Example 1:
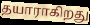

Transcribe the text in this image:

தயாராகிறது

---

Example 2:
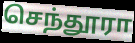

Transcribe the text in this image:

செந்தூரா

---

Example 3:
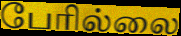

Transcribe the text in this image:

பேரில்லை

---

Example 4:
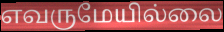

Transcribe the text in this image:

எவருமேயில்லை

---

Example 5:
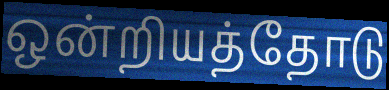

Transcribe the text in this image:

ஒன்றியத்தோடு